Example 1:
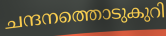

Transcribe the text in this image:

ചന്ദനത്തൊടുകുറി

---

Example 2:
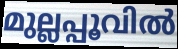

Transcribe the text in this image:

മുല്ലപ്പൂവിൽ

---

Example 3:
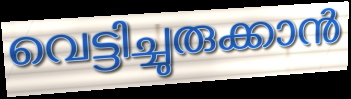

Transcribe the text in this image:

വെട്ടിച്ചുരുക്കാൻ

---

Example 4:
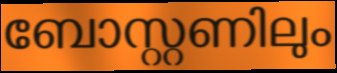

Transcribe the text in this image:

ബോസ്റ്റണിലും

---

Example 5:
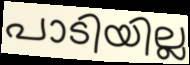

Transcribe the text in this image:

പാടിയില്ല